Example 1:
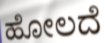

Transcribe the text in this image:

ಹೋಲದೆ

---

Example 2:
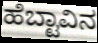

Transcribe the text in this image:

ಹೆಬ್ಟಾವಿನ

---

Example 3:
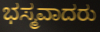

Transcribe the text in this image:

ಭಸ್ಮವಾದರು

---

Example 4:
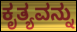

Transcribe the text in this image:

ಕೃತ್ಯವನ್ನು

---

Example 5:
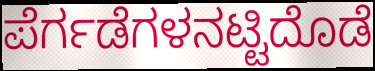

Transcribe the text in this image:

ಪೆರ್ಗಡೆಗಳನಟ್ಟಿದೊಡೆ